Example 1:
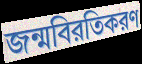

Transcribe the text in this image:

জন্মবিরতিকরণ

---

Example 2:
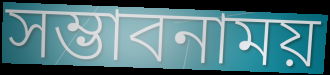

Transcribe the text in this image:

সম্ভাবনাময়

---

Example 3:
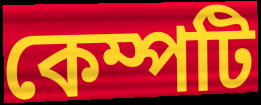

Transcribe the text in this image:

কেম্পটি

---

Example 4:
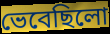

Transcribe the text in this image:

ভেবেছিলো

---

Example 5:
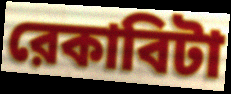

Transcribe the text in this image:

রেকাবিটা